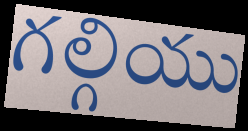
గల్గియు